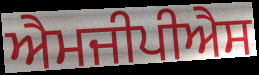
ਐਮਜੀਪੀਐਸ